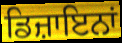
ਡਿਜ਼ਾਇਨਾਂ